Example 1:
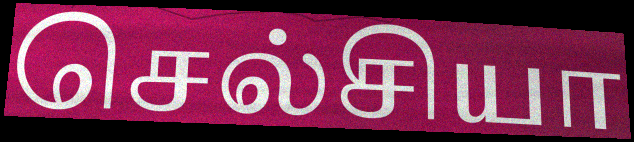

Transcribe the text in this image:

செல்சியா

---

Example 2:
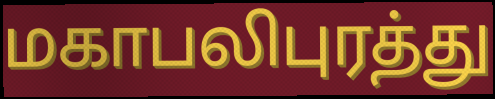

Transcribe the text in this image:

மகாபலிபுரத்து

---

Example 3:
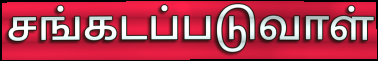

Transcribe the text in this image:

சங்கடப்படுவாள்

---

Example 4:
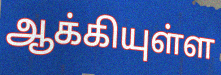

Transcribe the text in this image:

ஆக்கியுள்ள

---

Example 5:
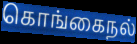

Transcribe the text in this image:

கொங்கைநல்